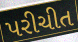
પરીચીત